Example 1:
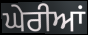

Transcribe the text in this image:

ਘੇਰੀਆਂ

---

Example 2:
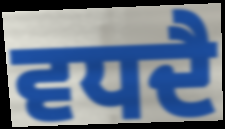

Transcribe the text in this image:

ਵਧਦੈ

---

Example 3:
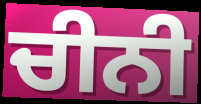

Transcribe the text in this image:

ਚੀਨੀ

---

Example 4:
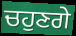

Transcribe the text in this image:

ਚਹੁਣਗੇ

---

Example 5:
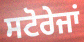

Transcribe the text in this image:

ਸਟੋਰੇਜਾਂ